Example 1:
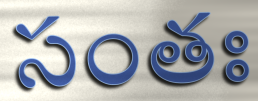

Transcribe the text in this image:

సంతః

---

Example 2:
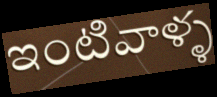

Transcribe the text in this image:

ఇంటివాళ్ళ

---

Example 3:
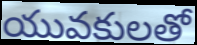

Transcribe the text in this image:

యువకులతో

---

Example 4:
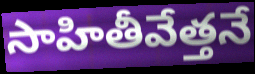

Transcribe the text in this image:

సాహితీవేత్తనే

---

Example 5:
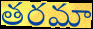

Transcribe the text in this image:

తరమా